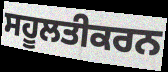
ਸਹੂਲਤੀਕਰਨ